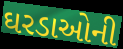
ઘરડાઓની